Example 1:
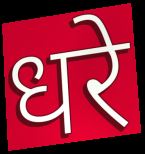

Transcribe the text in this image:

धरे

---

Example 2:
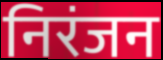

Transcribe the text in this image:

निरंजन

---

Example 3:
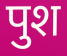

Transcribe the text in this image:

पुश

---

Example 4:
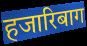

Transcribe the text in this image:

हजारिबाग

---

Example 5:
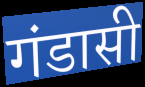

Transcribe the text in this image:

गंडासी